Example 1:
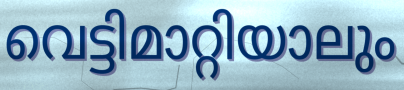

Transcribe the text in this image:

വെട്ടിമാറ്റിയാലും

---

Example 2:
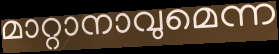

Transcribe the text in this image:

മാറ്റാനാവുമെന്ന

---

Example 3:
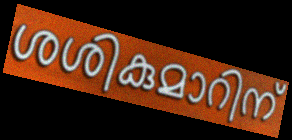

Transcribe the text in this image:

ശശികുമാറിന്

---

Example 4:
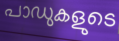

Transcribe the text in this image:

പാഡുകളുടെ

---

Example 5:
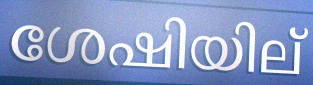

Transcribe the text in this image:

ശേഷിയില്